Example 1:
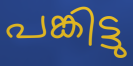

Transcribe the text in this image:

പങ്കിട്ടു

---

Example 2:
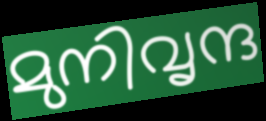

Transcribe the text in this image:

മുനിവൃന്ദ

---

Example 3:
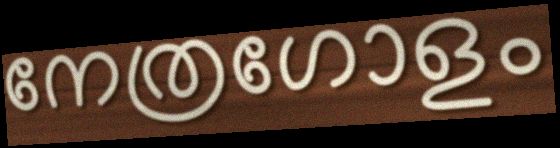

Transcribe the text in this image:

നേത്രഗോളം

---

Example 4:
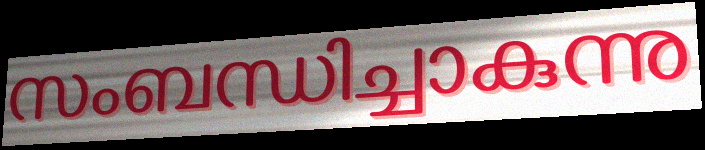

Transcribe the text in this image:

സംബന്ധിച്ചാകുന്നു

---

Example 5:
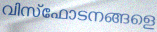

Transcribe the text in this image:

വിസ്ഫോടനങ്ങളെ